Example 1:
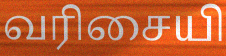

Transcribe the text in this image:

வரிசையி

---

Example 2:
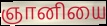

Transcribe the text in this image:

ஞானியை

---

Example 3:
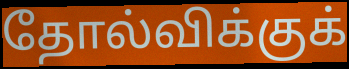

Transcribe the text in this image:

தோல்விக்குக்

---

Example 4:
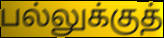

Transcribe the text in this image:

பல்லுக்குத்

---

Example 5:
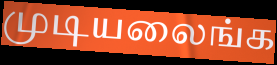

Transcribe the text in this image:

முடியலைங்க